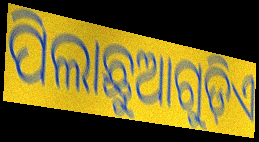
ପିଲାଛୁଆଗୁଡ଼ିଏ